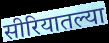
सीरियातल्या